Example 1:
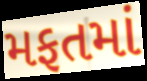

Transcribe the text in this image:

મફતમાં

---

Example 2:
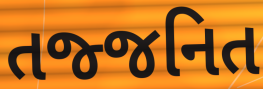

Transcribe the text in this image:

તજ્જનિત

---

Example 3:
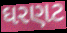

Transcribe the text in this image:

ઘરણટ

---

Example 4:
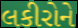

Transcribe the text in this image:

લકીરોને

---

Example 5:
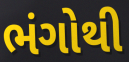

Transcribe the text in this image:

ભંગોથી